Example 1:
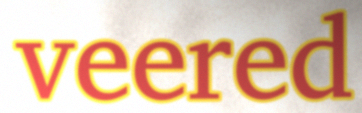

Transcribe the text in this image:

veered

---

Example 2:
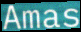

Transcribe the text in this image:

Amas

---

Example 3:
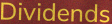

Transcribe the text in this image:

Dividends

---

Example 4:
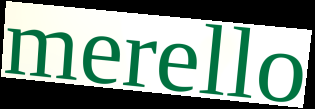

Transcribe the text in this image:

merello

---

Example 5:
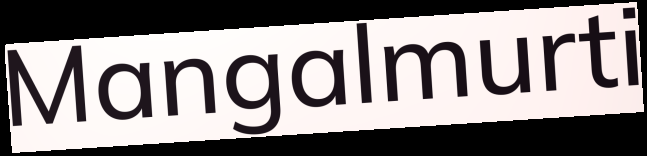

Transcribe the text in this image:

Mangalmurti